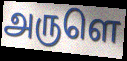
அருளெ